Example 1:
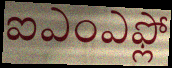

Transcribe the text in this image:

ఐఎంఎఫ్లో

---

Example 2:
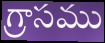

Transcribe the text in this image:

గ్రాసము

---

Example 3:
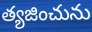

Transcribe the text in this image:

త్యజించును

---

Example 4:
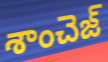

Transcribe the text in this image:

శాంచెజ్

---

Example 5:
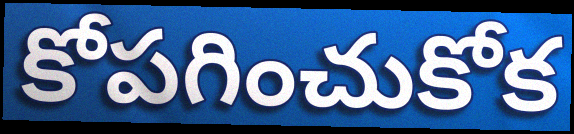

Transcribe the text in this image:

కోపగించుకోక